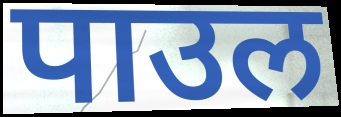
पाउल